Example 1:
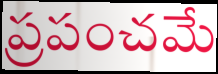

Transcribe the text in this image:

ప్రపంచమే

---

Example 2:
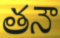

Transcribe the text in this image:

తనౌ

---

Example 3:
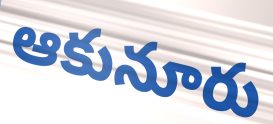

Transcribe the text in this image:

ఆకునూరు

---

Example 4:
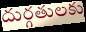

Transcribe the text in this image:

దుర్గతులకు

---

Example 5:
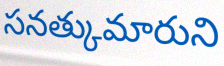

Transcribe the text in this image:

సనత్కుమారుని